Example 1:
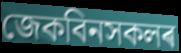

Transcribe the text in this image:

জেকবিনসকলৰ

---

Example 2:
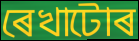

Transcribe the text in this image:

ৰেখাটোৰ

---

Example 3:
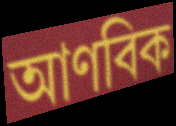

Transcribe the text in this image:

আণবিক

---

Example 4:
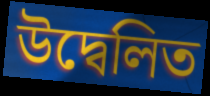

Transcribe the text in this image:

উদ্বেলিত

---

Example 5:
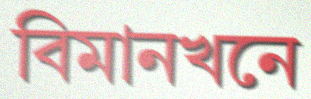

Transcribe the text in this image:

বিমানখনে